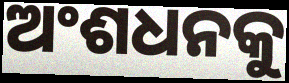
ଅଂଶଧନକୁ